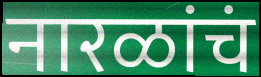
नारळांचं